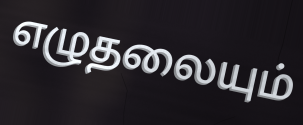
எழுதலையும்